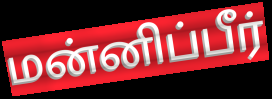
மன்னிப்பீர்